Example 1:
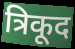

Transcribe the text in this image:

त्रिकूद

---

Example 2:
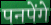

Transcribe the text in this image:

पनपेंगे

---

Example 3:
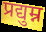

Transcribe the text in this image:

प्रद्युम्न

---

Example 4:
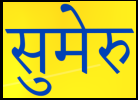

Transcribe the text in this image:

सुमेरु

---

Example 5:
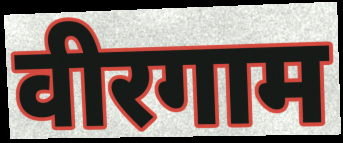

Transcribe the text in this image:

वीरगाम